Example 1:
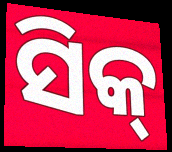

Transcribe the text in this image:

ସିକ୍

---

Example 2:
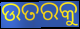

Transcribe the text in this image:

ଉତରକୁ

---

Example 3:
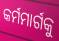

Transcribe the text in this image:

କର୍ମମାର୍ଗକୁ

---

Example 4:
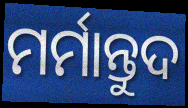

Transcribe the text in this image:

ମର୍ମାନ୍ତୁଦ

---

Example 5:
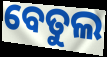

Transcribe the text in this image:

ବେତୁଲ